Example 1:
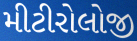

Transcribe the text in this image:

મીટીરોલોજી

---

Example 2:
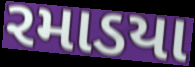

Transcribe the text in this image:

રમાડયા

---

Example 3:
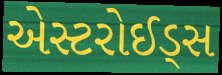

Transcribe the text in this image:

એસ્ટરોઈડ્સ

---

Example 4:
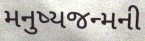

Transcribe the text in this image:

મનુષ્યજન્મની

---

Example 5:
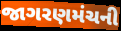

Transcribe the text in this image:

જાગરણમંચની